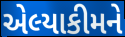
એલ્યાકીમને